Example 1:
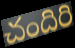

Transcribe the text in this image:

చందిరి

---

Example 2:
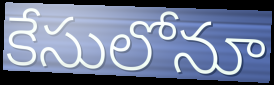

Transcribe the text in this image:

కేసులోనూ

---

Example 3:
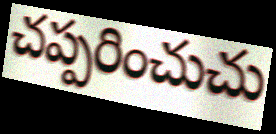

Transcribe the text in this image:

చప్పరించుచు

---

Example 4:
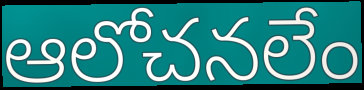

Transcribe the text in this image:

ఆలోచనలేం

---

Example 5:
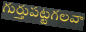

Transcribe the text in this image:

గుర్తుపట్టగలవా